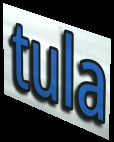
tula